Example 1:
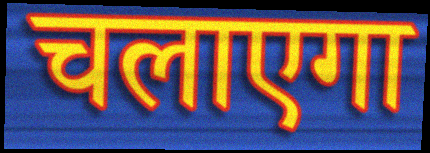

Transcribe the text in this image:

चलाएगा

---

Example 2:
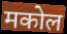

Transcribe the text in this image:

मकोल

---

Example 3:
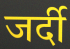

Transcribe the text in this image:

जर्दी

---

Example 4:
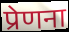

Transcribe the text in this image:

प्रेणना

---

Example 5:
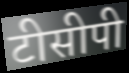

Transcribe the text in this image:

टीसीपी